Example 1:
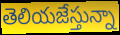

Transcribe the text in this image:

తెలియజేస్తున్నా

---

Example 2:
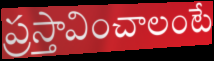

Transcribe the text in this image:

ప్రస్తావించాలంటే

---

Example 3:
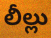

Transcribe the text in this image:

లీల్లు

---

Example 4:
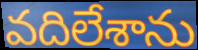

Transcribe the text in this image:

వదిలేశాను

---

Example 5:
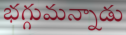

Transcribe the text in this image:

భగ్గుమన్నాడు